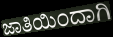
ಜಾತಿಯಿಂದಾಗಿ